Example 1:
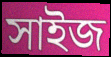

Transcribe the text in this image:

সাইজ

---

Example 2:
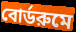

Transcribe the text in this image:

বোর্ডরুমে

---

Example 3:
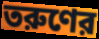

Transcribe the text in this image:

তরুণের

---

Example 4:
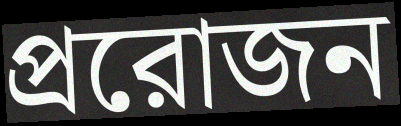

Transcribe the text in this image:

প্ররোজন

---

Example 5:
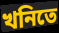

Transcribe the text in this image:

খনিতে